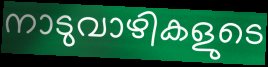
നാടുവാഴികളുടെ